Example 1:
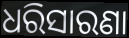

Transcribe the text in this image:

ଧରିସାରଣା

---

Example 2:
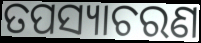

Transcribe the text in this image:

ତପସ୍ୟାଚରଣ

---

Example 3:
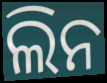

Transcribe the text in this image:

ଲିନ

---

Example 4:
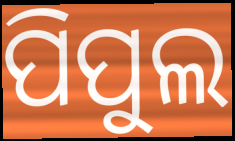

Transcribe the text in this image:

ପିପୁଲ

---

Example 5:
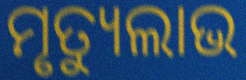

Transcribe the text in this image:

ମୃତ୍ୟୁଲାଭ